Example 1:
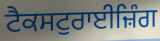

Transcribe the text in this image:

ਟੈਕਸਟੁਰਾਈਜ਼ਿੰਗ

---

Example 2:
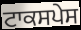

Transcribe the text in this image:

ਟਾਕਸਪੇਸ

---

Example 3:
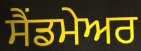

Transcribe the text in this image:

ਸੈਂਡਮੇਅਰ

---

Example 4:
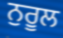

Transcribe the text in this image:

ਨੁਰੂਲ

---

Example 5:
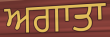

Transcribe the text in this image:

ਅਗਾਤਾ